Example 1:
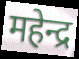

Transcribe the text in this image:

महेन्द्र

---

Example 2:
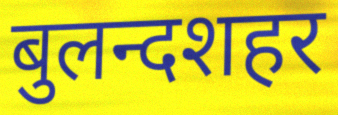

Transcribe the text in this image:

बुलन्दशहर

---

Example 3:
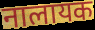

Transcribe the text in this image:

नालायक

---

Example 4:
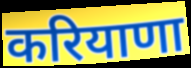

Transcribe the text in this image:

करियाणा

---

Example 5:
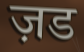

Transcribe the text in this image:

ज़ड